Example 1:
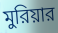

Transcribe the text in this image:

মুরিয়ার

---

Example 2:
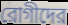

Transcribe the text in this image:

রোগীদের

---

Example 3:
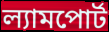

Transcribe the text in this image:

ল্যামপোর্ট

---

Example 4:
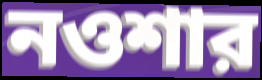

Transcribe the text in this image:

নওশার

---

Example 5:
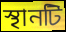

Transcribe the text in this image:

স্থানটি